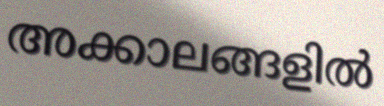
അക്കാലങ്ങളിൽ